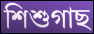
শিশুগাছ